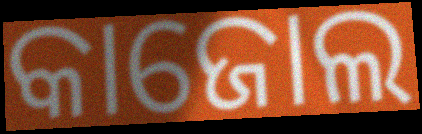
କାଜୋଲ